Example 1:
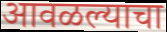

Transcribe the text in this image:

आवळल्याचा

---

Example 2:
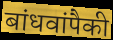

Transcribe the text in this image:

बांधवांपैकी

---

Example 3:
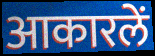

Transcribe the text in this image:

आकारलें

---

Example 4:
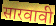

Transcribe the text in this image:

सारवावी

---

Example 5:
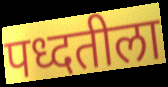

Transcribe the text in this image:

पध्दतीला